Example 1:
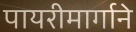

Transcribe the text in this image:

पायरीमार्गाने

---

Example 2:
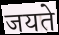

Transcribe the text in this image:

जयते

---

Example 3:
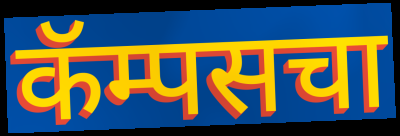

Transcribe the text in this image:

कॅम्पसचा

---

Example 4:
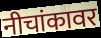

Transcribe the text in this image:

नीचांकावर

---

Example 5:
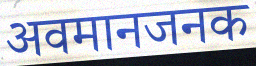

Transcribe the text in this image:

अवमानजनक